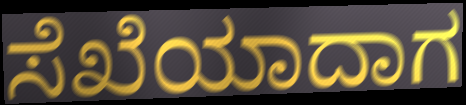
ಸೆಖೆಯಾದಾಗ